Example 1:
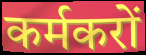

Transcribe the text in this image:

कर्मकरों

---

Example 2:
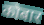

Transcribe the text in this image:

कोबार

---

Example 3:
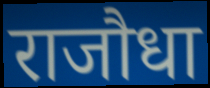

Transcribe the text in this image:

राजौधा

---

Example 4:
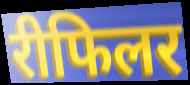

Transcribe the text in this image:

रीफिलर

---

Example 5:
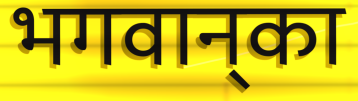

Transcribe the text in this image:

भगवान्‌का